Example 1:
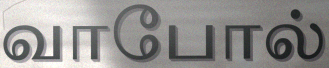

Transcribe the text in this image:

வாபோல்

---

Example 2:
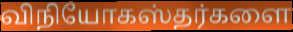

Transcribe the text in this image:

விநியோகஸ்தர்களை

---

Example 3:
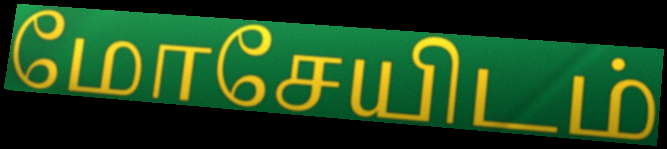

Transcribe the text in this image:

மோசேயிடம்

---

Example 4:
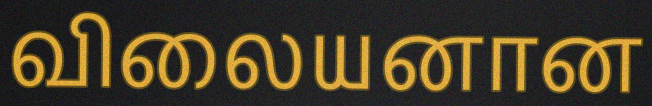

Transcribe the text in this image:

விலையனான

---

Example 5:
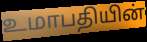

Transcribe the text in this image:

உமாபதியின்